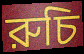
ৰুচি